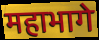
महाभागे